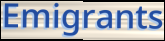
Emigrants